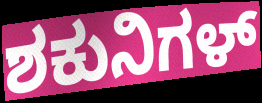
ಶಕುನಿಗಳ್